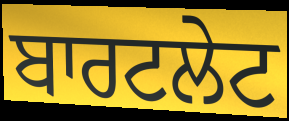
ਬਾਰਟਲੇਟ